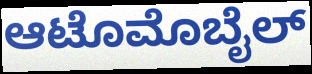
ಆಟೊಮೊಬೈಲ್